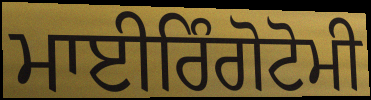
ਮਾਈਰਿੰਗੋਟੋਮੀ